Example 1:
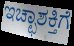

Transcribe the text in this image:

ಇಚ್ಛಾಶಕ್ತಿಗೆ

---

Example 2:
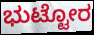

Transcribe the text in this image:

ಭುಟ್ಟೋರ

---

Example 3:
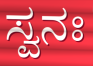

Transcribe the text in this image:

ಸ್ವನಃ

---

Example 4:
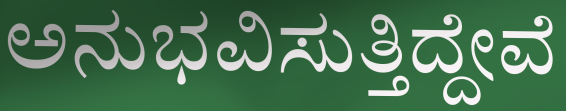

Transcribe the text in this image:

ಅನುಭವಿಸುತ್ತಿದ್ದೇವೆ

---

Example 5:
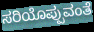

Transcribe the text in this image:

ಸರಿಯೊಪ್ಪುವಂತೆ